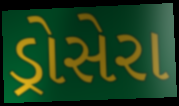
ડ્રોસેરા